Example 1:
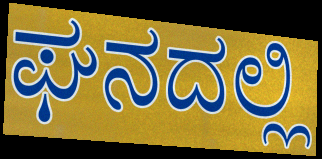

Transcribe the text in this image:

ಘನದಲ್ಲಿ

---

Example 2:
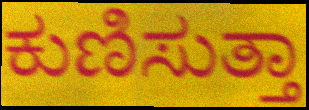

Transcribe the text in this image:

ಕುಣಿಸುತ್ತಾ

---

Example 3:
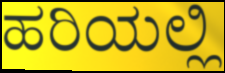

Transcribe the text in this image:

ಹರಿಯಲ್ಲಿ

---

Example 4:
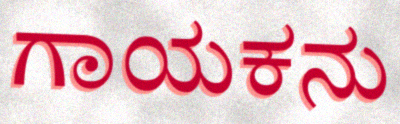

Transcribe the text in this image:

ಗಾಯಕನು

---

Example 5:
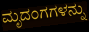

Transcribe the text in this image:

ಮೃದಂಗಗಳನ್ನು